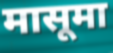
मासूमा